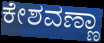
ಕೇಶವಣ್ಣಾ